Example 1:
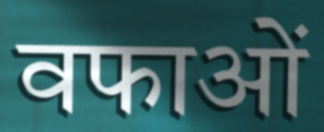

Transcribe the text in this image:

वफाओं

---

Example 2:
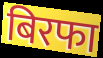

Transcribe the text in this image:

बिरफा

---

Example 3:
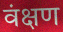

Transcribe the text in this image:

वंक्षण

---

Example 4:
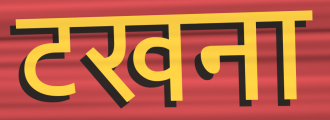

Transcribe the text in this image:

टखना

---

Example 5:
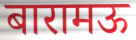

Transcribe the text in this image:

बारामऊ